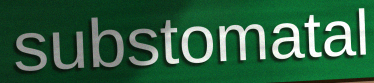
substomatal